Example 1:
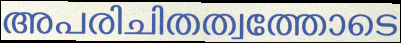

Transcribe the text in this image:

അപരിചിതത്വത്തോടെ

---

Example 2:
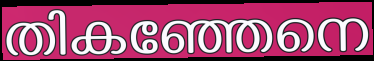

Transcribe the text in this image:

തികഞ്ഞേനെ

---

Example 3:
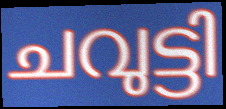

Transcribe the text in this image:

ചവുട്ടി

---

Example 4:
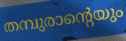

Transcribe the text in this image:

തമ്പുരാന്റെയും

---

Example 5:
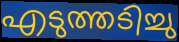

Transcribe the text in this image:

എടുത്തടിച്ചു